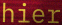
hier